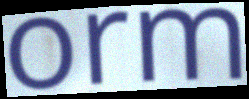
orm